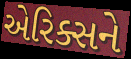
એરિક્સને